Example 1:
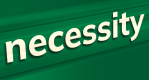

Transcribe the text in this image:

necessity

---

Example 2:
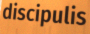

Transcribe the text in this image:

discipulis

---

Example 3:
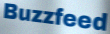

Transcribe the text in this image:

Buzzfeed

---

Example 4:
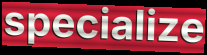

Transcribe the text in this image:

specialize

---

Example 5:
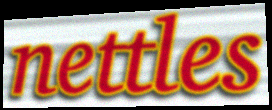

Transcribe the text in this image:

nettles